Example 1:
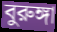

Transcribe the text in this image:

বুরুঙ্গা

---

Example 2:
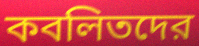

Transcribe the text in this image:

কবলিতদের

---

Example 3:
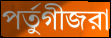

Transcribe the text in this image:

পর্তুগীজরা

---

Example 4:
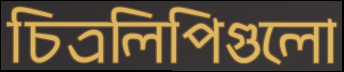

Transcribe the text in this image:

চিত্রলিপিগুলো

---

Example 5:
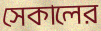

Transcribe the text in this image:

সেকালের